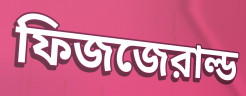
ফিজজেরাল্ড